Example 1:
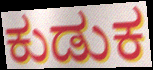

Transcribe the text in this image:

ಕುಡುಕ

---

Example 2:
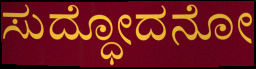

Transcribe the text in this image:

ಸುದ್ಧೋದನೋ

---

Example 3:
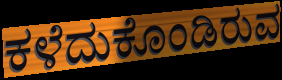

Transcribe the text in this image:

ಕಳೆದುಕೊಂಡಿರುವ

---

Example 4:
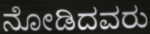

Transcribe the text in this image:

ನೋಡಿದವರು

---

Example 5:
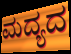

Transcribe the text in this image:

ಮದ್ಯದ